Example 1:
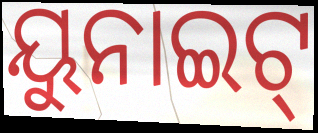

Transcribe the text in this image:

ୟୁନାଇଟ୍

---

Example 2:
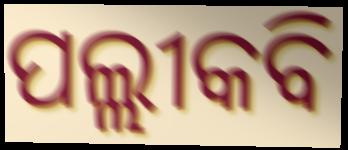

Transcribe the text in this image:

ପଲ୍ଲୀକବି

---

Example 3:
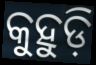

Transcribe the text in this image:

କୁହୁଡ଼ି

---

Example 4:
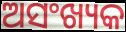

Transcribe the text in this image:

ଅସଂଖ୍ୟକ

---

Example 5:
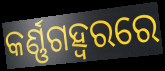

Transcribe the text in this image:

କର୍ଣ୍ଣଗହ୍ଵରରେ